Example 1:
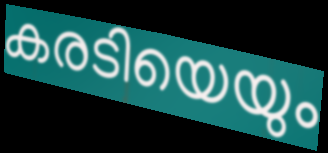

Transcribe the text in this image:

കരടിയെയും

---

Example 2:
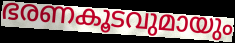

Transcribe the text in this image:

ഭരണകൂടവുമായും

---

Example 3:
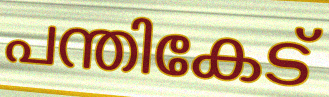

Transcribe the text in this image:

പന്തികേട്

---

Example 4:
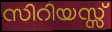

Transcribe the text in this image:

സിറിയസ്സ്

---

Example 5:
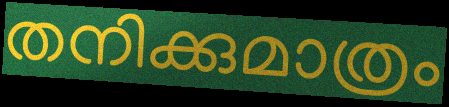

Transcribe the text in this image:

തനിക്കുമാത്രം